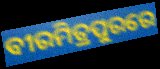
ବୀରମିତ୍ରପୁରରେ